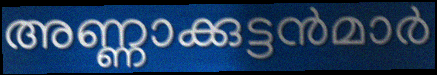
അണ്ണാക്കുട്ടൻമാർ